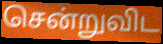
சென்றுவிட